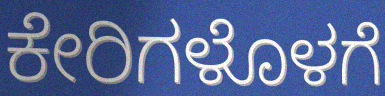
ಕೇರಿಗಳೊಳಗೆ